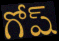
గోష్